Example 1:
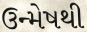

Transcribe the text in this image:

ઉન્મેષથી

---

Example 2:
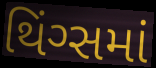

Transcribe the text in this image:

થિંગ્સમાં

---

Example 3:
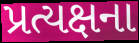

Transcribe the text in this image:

પ્રત્યક્ષના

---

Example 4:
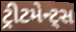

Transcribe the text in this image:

ટ્રીટમેન્ટ્સ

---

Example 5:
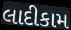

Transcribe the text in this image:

લાદીકામ